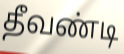
தீவண்டி